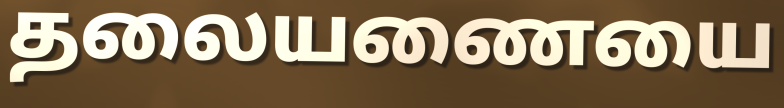
தலையணையை